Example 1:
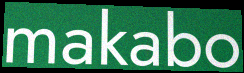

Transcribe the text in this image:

makabo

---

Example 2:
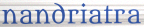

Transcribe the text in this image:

nandriatra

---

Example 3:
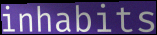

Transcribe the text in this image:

inhabits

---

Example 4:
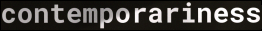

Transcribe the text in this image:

contemporariness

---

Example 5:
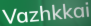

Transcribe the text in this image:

Vazhkkai